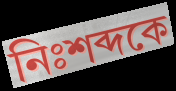
নিঃশব্দকে